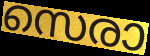
സെരാ